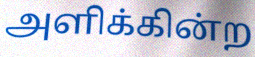
அளிக்கின்ற